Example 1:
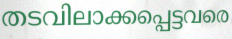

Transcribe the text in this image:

തടവിലാക്കപ്പെട്ടവരെ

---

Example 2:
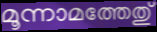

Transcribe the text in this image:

മൂന്നാമത്തേതു്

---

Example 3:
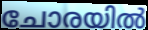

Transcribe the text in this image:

ചോരയിൽ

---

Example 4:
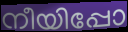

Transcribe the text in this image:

നീയിപ്പോ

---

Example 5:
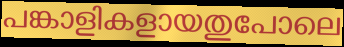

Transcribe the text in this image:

പങ്കാളികളായതുപോലെ